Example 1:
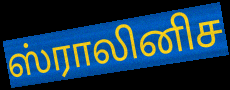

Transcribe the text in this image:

ஸ்ராலினிச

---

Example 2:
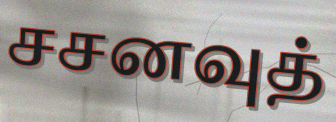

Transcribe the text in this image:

சசனவுத்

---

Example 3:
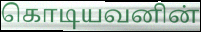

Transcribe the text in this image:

கொடியவனின்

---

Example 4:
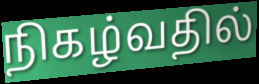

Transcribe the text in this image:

நிகழ்வதில்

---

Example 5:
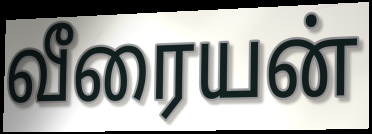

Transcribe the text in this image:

வீரையன்